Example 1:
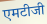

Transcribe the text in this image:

एमटीजी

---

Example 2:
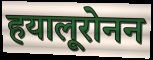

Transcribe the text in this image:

हयालूरोनन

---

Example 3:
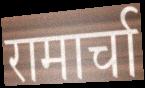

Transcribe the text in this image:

रामार्चा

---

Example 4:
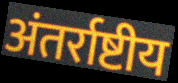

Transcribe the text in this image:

अंतर्राष्टीय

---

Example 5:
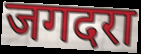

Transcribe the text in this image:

जगदरा